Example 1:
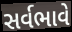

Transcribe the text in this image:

સર્વભાવે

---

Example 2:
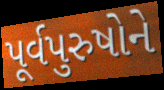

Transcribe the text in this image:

પૂર્વપુરુષોને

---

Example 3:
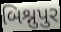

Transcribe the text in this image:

બિશ્નુપુર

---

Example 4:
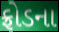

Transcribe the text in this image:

ફ્રોડના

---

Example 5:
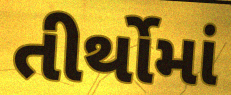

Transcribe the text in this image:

તીર્થોમાં